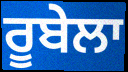
ਰੂਬੇਲਾ